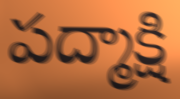
పద్మాక్షి